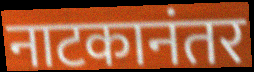
नाटकानंतर